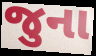
જુના